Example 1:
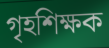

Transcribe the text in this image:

গৃহশিক্ষক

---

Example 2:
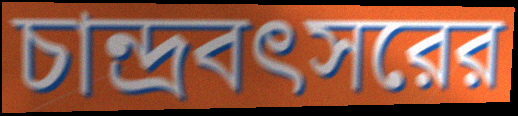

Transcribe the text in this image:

চান্দ্রবৎসরের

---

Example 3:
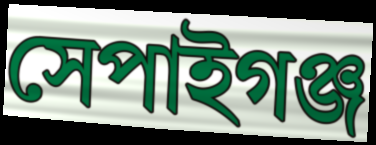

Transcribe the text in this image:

সেপাইগঞ্জ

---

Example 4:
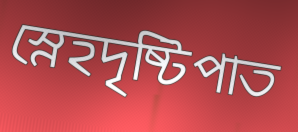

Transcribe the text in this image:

স্নেহদৃষ্টিপাত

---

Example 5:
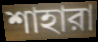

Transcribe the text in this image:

শাহারা